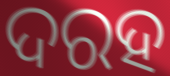
ଦରହ